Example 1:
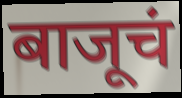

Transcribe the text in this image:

बाजूचं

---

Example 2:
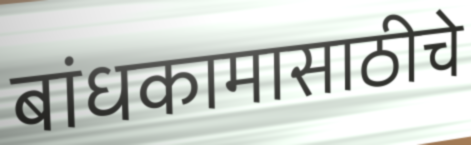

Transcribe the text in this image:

बांधकामासाठीचे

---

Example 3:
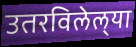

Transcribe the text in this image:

उतरविलेल्या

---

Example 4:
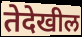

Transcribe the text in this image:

तेदेखील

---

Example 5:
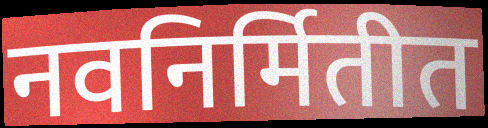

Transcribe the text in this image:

नवनिर्मितीत